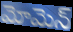
మోమెన్